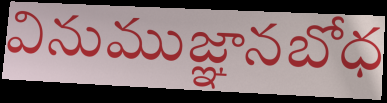
వినుముజ్ఞానబోధ